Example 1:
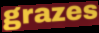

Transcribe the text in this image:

grazes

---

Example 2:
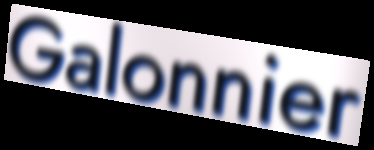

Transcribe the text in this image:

Galonnier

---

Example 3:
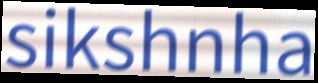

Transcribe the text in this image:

sikshnha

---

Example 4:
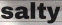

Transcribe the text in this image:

salty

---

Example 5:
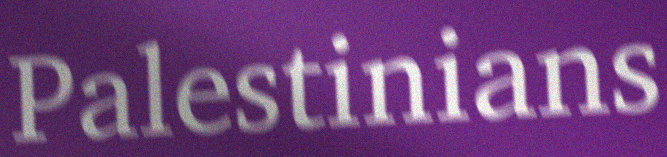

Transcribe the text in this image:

Palestinians